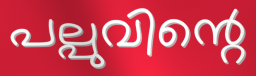
പല്പുവിന്റെ